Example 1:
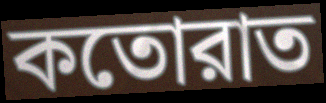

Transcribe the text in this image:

কতোরাত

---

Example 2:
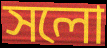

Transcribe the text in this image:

সলো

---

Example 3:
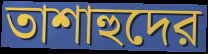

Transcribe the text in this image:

তাশাহুদের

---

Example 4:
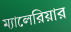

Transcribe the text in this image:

ম্যালেরিয়ার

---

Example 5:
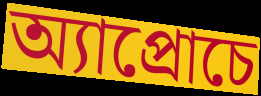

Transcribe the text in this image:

অ্যাপ্রোচে